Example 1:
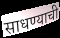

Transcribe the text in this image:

साधण्याची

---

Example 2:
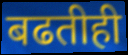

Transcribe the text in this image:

बढतीही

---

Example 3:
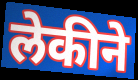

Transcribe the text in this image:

लेकीने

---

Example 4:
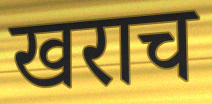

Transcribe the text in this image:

खराच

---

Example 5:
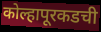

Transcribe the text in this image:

कोल्हापूरकडची